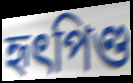
হৃৎপিণ্ড